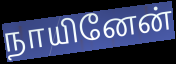
நாயினேன்